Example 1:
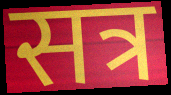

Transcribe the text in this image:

सत्र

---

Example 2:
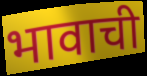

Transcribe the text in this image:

भावाची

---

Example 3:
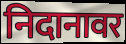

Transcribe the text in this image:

निदानावर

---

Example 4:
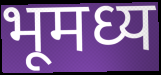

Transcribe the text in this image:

भूमध्य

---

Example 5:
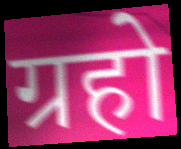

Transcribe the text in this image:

ग्रहो